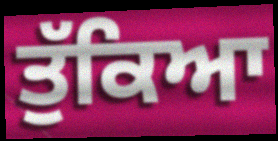
ਤੁੱਕਿਆ